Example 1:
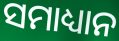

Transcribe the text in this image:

ସମାଧ୍ୟାନ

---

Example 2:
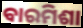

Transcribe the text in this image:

ବାରମିଶା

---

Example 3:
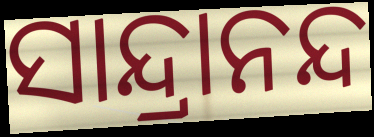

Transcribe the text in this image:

ସାନ୍ଦ୍ରାନନ୍ଦ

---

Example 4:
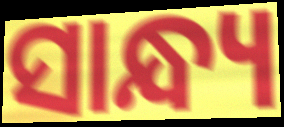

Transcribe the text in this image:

ସାନ୍ଧ୍ୟ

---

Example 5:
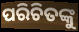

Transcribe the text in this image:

ପରିଚିତଙ୍କୁ